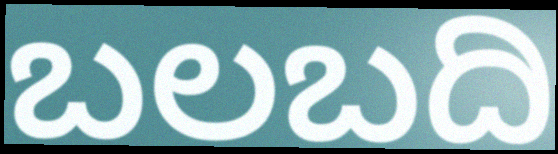
ಬಲಬದಿ